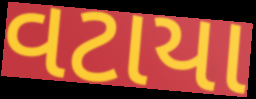
વટાયા